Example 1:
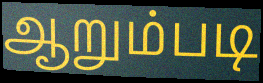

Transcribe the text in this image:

ஆறும்படி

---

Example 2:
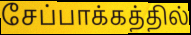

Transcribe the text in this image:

சேப்பாக்கத்தில்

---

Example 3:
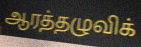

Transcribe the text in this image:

ஆரத்தழுவிக்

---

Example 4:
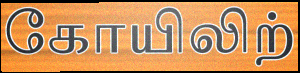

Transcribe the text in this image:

கோயிலிற்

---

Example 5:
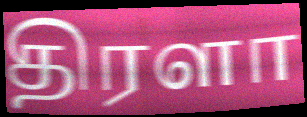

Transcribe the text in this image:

திரளா